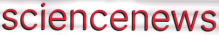
sciencenews